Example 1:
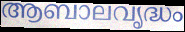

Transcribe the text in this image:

ആബാലവൃദ്ധം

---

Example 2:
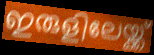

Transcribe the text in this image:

ഇരുളിലേയ്ക്ക്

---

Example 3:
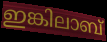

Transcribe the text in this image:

ഇങ്കിലാബ്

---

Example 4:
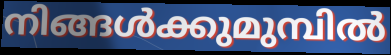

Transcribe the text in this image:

നിങ്ങൾക്കുമുമ്പിൽ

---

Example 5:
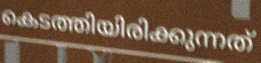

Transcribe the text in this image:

കെടത്തിയിരിക്കുന്നത്